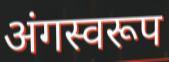
अंगस्वरूप